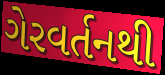
ગેરવર્તનથી